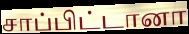
சாப்பிட்டானா